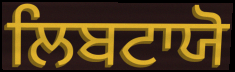
ਲਿਬਟਾਯੋ